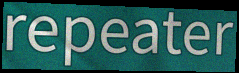
repeater